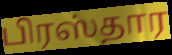
பிரஸ்தார